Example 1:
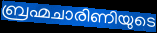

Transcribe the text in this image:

ബ്രഹ്മചാരിണിയുടെ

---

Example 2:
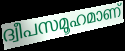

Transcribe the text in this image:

ദ്വീപസമൂഹമാണ്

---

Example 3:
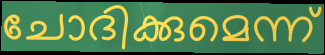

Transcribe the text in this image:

ചോദിക്കുമെന്ന്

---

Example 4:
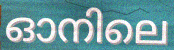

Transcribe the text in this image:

ഓനിലെ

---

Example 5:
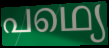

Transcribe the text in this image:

പഥ്യെ